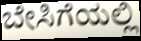
ಬೇಸಿಗೆಯಲ್ಲಿ